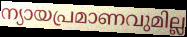
ന്യായപ്രമാണവുമില്ല